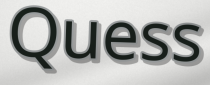
Quess